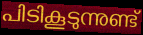
പിടികൂടുന്നുണ്ട്